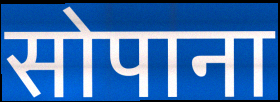
सोपाना